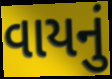
વાયનું